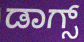
ಡಾಗ್ಸ್